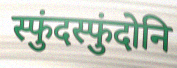
स्फुंदस्फुंदोनि